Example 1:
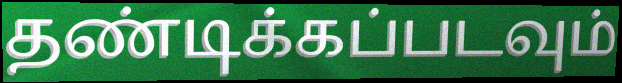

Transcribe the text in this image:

தண்டிக்கப்படவும்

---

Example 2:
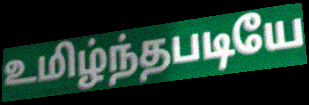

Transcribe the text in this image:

உமிழ்ந்தபடியே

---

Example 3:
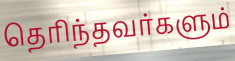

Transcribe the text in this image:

தெரிந்தவர்களும்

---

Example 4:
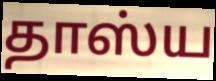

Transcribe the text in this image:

தாஸ்ய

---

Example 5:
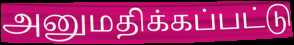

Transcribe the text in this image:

அனுமதிக்கப்பட்டு